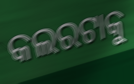
କଲରଟାକୁ